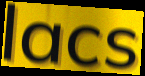
lacs